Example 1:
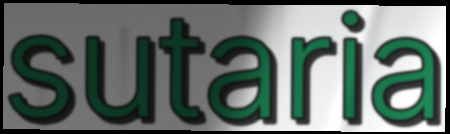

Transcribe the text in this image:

sutaria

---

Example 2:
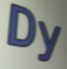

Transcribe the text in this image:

Dy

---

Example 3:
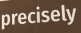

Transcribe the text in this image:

precisely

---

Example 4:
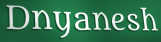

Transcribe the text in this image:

Dnyanesh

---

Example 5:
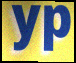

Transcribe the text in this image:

yp